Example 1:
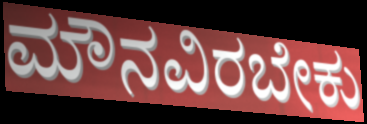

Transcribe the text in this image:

ಮೌನವಿರಬೇಕು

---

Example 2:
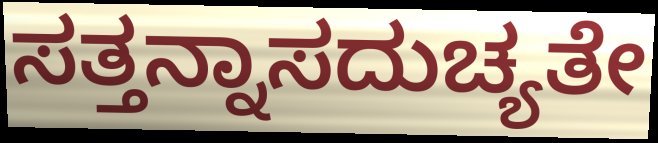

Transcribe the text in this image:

ಸತ್ತನ್ನಾಸದುಚ್ಯತೇ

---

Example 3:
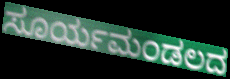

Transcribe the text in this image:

ಸೂರ್ಯಮಂಡಲದ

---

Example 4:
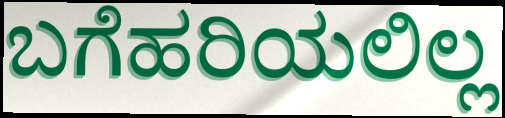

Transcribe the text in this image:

ಬಗೆಹರಿಯಲಿಲ್ಲ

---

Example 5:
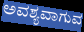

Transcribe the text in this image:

ಅವಶ್ಯವಾಗುವ